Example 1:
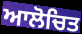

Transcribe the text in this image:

ਆਲੋਚਿਤ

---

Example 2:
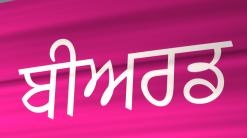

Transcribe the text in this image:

ਬੀਅਰਡ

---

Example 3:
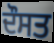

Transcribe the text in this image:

ਦੌਸਤ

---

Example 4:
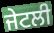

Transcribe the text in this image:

ਜੇਟਲੀ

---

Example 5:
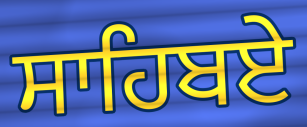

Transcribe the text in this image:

ਸਾਹਿਬਏ